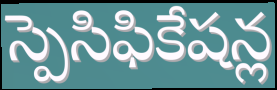
స్పెసిఫికేషన్ల